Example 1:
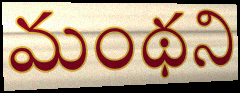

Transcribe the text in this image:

మంథని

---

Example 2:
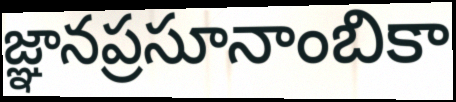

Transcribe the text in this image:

జ్ఞానప్రసూనాంబికా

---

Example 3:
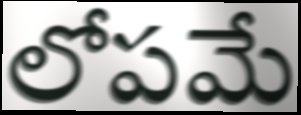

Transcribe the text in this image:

లోపమే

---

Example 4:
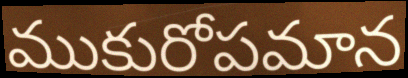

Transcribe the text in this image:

ముకురోపమాన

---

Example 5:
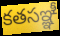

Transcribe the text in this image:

కతసఞ్ఞీ